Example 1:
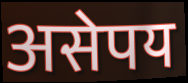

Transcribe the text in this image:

असेपय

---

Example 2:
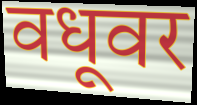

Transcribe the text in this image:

वधूवर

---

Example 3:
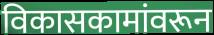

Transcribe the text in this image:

विकासकामांवरून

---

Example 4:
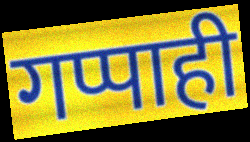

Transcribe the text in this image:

गप्पाही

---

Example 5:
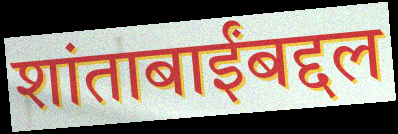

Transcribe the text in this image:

शांताबाईंबद्दल